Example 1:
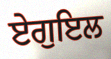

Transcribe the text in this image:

ਏਗੁਇਲ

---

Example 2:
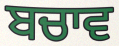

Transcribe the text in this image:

ਬਚਾਵ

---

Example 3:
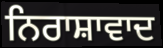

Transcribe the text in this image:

ਨਿਰਾਸ਼ਾਵਾਦ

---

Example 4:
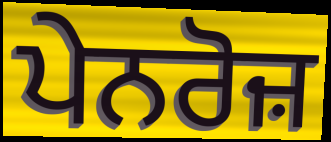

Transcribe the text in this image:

ਪੇਨਰੋਜ਼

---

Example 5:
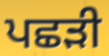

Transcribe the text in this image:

ਪਛੜੀ